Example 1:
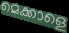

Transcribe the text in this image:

മെക്കാളെ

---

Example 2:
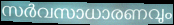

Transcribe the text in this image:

സർവസാധാരണവും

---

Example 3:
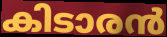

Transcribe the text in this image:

കിടാരൻ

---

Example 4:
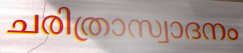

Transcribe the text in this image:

ചരിത്രാസ്വാദനം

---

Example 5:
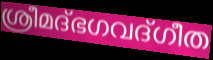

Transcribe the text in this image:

ശ്രീമദ്ഭഗവദ്ഗീത